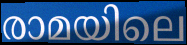
രാമയിലെ